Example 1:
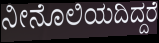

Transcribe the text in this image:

ನೀನೊಲಿಯದಿದ್ದರೆ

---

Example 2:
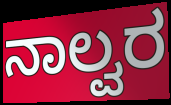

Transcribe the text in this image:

ನಾಲ್ವರ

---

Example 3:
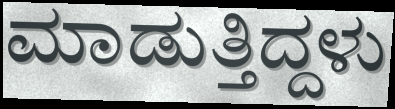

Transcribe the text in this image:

ಮಾಡುತ್ತಿದ್ದಳು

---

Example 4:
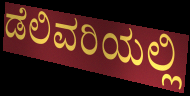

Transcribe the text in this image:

ಡೆಲಿವರಿಯಲ್ಲಿ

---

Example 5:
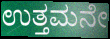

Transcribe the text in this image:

ಉತ್ತಮನೇ